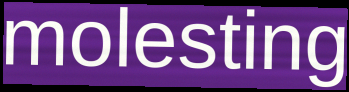
molesting